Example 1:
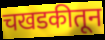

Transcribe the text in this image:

चखडकीतून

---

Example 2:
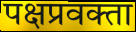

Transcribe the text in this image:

पक्षप्रवक्ता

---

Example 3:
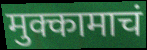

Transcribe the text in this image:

मुक्कामाचं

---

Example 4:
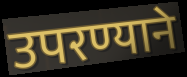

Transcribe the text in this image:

उपरण्याने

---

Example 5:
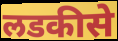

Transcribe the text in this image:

लडकीसे